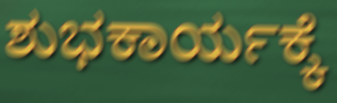
ಶುಭಕಾರ್ಯಕ್ಕೆ